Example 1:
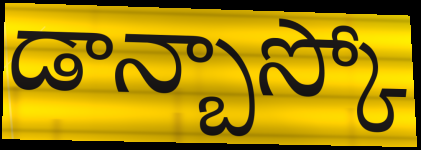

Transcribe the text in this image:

డాన్బాస్కో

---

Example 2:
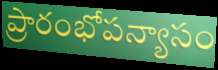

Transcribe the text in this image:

ప్రారంభోపన్యాసం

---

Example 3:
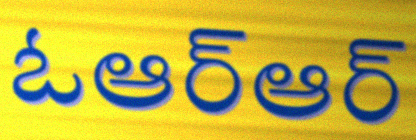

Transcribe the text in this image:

ఓఆర్ఆర్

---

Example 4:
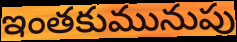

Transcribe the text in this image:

ఇంతకుమునుపు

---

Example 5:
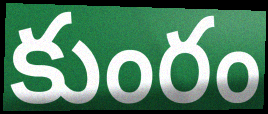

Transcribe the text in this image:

కుంరం